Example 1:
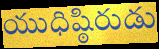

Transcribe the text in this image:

యుధిష్ఠిరుడు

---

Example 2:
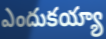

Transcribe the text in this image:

ఎందుకయ్యా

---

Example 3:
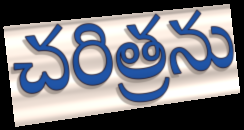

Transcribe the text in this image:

చరిత్రను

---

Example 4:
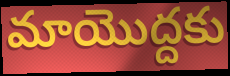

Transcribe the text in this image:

మాయొద్దకు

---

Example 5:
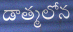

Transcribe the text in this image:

డాత్మలోన